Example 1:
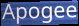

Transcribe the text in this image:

Apogee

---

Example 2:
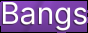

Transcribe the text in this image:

Bangs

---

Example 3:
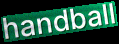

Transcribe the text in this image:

handball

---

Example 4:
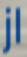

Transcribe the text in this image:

jl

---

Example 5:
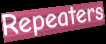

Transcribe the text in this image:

Repeaters